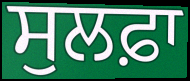
ਸੁਲਫ਼ਾ